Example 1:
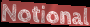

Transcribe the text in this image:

Notional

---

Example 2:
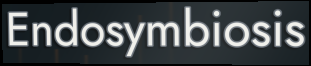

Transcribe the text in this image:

Endosymbiosis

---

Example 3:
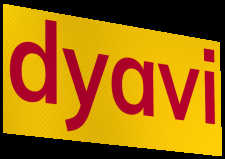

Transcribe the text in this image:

dyavi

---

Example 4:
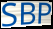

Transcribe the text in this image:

SBP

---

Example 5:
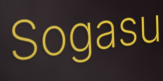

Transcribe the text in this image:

Sogasu